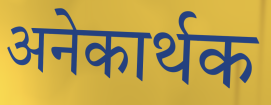
अनेकार्थक